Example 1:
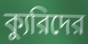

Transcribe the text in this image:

ক্যুরিদের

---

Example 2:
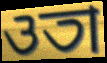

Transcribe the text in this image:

ওতা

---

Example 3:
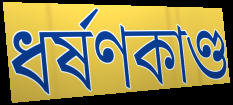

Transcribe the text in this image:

ধর্ষণকাণ্ড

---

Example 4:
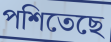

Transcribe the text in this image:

পশিতেছে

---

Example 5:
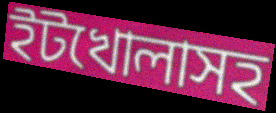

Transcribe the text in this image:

ইটখোলাসহ